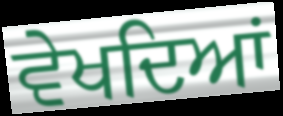
ਵੇਖਦਿਆਂ